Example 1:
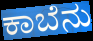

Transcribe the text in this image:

ಕಾಬೆನು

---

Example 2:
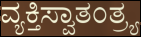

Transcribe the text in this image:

ವ್ಯಕ್ತಿಸ್ವಾತಂತ್ರ್ಯ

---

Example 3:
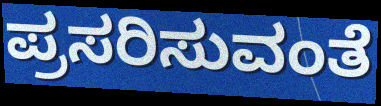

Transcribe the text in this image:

ಪ್ರಸರಿಸುವಂತೆ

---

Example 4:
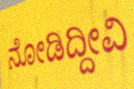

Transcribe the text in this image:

ನೋಡಿದ್ದೀವಿ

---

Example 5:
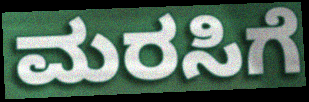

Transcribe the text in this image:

ಮರಸಿಗೆ